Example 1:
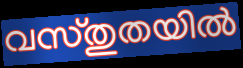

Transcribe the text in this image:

വസ്തുതയിൽ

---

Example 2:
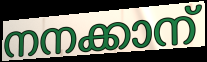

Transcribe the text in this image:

നനക്കാന്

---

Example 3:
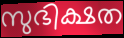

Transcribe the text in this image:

സുഭിക്ഷത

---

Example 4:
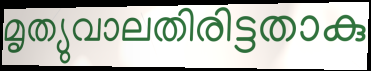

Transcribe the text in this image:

മൃത്യുവാലതിരിട്ടതാകു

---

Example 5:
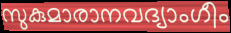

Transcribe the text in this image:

സുകുമാരാനവദ്യാംഗീം